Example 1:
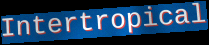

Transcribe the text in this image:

Intertropical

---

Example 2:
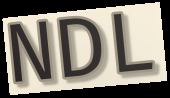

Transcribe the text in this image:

NDL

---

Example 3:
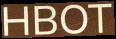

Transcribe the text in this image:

HBOT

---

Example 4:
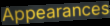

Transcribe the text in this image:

Appearances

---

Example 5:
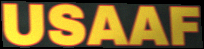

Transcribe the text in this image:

USAAF